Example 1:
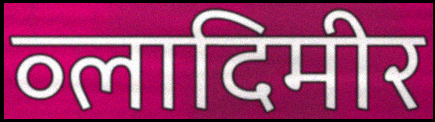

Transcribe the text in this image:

व्‍लादिमीर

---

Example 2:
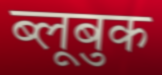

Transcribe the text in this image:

ब्लूबुक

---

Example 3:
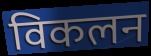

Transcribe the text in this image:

विकलन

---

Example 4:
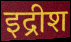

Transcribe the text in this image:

इद्रीश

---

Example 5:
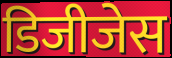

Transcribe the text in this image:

डिजीजेस